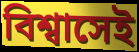
বিশ্বাসেই